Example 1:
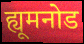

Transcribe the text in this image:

ह्यूमनोड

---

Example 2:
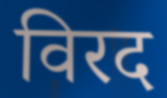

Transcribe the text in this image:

विरद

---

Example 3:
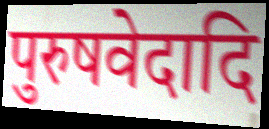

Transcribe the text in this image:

पुरुषवेदादि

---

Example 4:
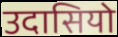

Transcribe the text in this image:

उदासियो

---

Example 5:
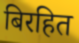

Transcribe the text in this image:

बिरहित